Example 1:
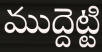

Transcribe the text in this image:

ముద్దెట్టి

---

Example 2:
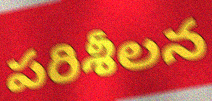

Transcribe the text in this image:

పరిశీలన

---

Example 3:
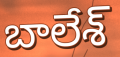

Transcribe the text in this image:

బాలేశ్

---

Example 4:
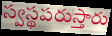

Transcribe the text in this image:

స్వస్థపరుస్తారు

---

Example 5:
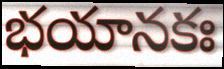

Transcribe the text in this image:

భయానకః